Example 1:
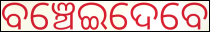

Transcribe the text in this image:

ବଞ୍ଚେଇଦେବେ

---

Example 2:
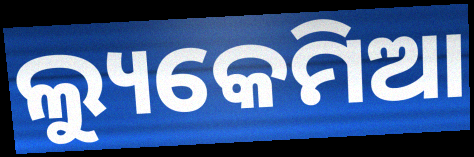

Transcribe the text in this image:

ଲ୍ୟୁକେମିଆ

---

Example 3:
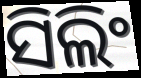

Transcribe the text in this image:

ସିଲିଂ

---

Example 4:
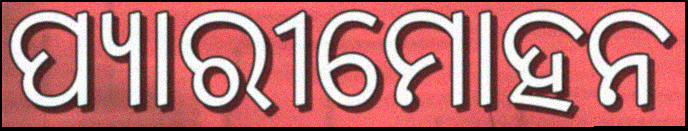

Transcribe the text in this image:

ପ୍ୟାରୀମୋହନ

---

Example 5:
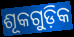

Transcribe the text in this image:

ଶୂକଗୁଡ଼ିକ